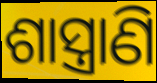
ଶାସ୍ତ୍ରାଣି